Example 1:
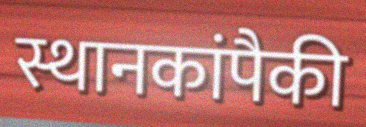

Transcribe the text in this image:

स्थानकांपैकी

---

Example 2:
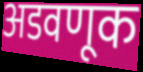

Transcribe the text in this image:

अडवणूक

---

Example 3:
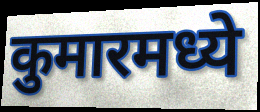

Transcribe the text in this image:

कुमारमध्ये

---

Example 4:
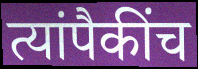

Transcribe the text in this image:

त्यांपैकींच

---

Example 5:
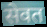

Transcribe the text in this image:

सेवत